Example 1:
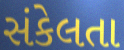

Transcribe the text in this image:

સંકેલતા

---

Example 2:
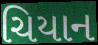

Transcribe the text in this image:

ચિયાન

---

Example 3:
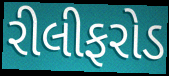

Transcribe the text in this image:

રીલીફરોડ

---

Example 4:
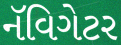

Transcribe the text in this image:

નૅવિગેટર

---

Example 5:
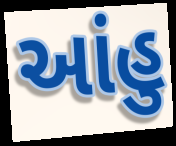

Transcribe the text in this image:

આંહુ